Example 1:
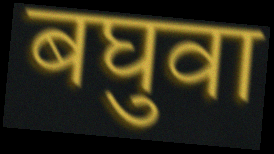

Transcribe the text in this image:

बघुवा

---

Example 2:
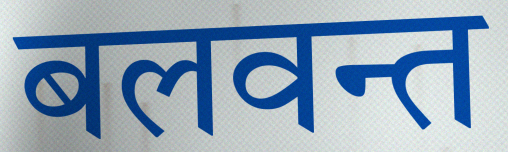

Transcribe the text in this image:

बलवन्‍त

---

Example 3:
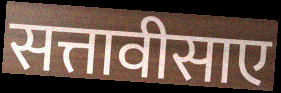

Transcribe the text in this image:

सत्तावीसाए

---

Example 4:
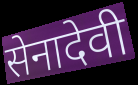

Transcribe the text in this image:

सेनादेवी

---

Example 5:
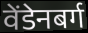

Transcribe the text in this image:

वेंडेनबर्ग